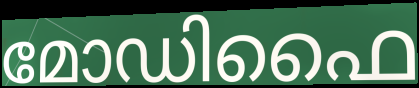
മോഡിഫൈ